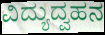
ವಿದ್ಯುದ್ವಹನ